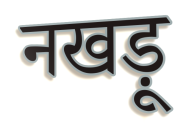
नखड़ू